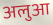
अलुआ